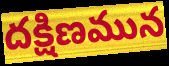
దక్షిణమున